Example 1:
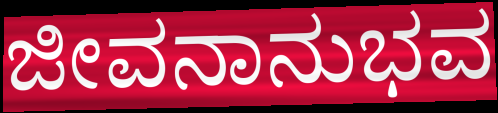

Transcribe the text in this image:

ಜೀವನಾನುಭವ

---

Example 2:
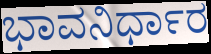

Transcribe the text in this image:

ಭಾವನಿರ್ಧಾರ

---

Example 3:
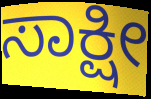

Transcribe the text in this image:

ಸಾಕ್ಷೀ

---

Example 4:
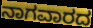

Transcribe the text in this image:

ನಾಗವಾರದ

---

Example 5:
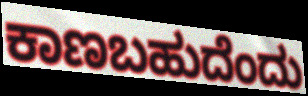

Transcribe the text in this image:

ಕಾಣಬಹುದೆಂದು